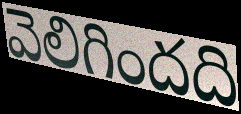
వెలిగిందది